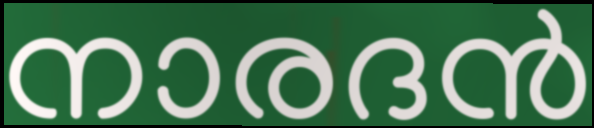
നാരദൻ